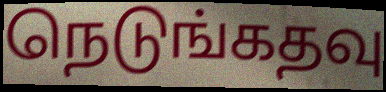
நெடுங்கதவு